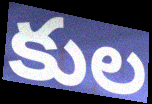
కుల